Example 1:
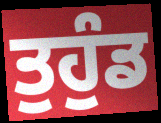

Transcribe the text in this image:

ਤੁਹੁੰਡ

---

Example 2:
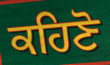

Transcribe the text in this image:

ਕਹਿਣੋ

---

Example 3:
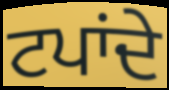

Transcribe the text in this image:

ਟਪਾਂਦੇ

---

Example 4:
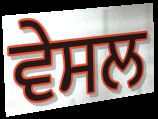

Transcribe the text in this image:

ਵੇਸਲ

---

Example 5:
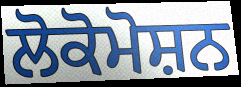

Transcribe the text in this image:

ਲੋਕੋਮੋਸ਼ਨ